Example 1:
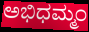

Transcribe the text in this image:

ಅಭಿಧಮ್ಮಂ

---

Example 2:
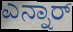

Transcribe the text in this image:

ಎನ್ನಾರ್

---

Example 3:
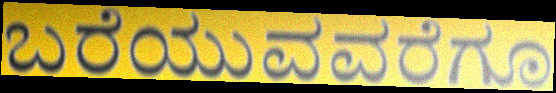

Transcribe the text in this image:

ಬರೆಯುವವರೆಗೂ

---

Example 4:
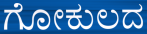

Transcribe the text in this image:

ಗೋಕುಲದ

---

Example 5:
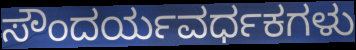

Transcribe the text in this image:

ಸೌಂದರ್ಯವರ್ಧಕಗಳು